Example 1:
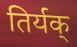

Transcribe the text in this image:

तिर्यक्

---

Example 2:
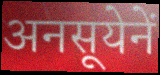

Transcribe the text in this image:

अनसूयेनें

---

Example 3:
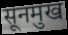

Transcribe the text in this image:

सूनमुख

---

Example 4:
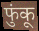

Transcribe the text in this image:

फुंकू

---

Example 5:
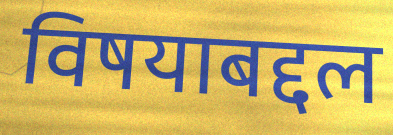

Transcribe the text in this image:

विषयाबद्दल